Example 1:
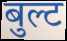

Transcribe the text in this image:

बुल्ट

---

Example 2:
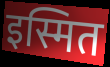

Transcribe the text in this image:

इस्मित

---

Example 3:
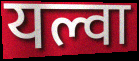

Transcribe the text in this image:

यल्वा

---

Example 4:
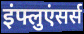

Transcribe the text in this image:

इंफ्लुएंसर्स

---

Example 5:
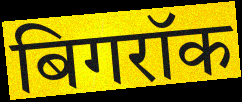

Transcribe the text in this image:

बिगरॉक